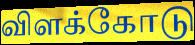
விளக்கோடு